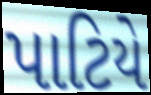
પાટિયે